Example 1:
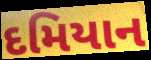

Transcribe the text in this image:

દમિયાન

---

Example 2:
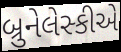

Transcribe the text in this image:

બ્રુનેલેસ્કીએ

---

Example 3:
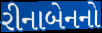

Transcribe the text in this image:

રીનાબેનનો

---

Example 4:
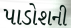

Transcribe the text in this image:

પાડોશની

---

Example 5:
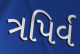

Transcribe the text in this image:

ત્રપિર્વ